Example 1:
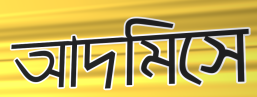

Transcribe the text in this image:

আদমিসে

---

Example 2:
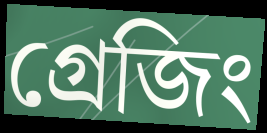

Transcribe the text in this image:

গ্রেজিং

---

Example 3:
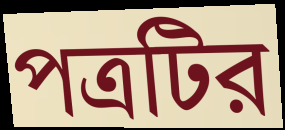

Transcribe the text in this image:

পত্রটির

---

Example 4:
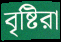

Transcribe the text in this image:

বৃষ্টিরা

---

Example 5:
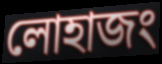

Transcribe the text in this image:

লোহাজং